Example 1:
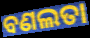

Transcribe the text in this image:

ବଣଲତା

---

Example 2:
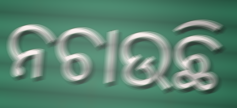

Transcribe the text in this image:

ନଚାଉଛି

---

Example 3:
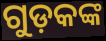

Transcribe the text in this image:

ଗୁଡ଼କଙ୍କ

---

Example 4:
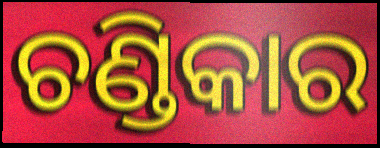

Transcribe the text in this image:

ଚଣ୍ଡିକାର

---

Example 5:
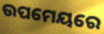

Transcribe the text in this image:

ଉପମେୟରେ